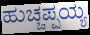
ಹುಚ್ಚಪ್ಪಯ್ಯ